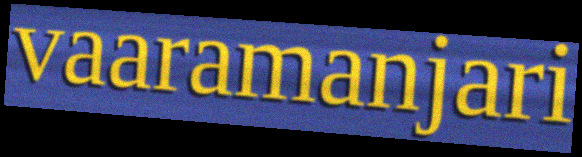
vaaramanjari